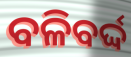
ବଳିବର୍ଦ୍ଦ